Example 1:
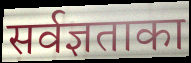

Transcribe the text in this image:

सर्वज्ञताका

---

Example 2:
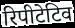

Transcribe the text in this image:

रिपीटेटिव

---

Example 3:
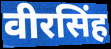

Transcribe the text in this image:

वीरसिंह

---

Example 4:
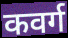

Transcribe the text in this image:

कवर्ग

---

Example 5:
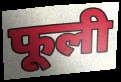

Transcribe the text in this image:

फूली